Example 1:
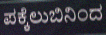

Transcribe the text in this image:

ಪಕ್ಕೆಲುಬಿನಿಂದ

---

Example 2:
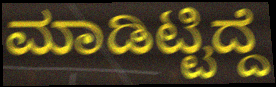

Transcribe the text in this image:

ಮಾಡಿಟ್ಟಿದ್ದೆ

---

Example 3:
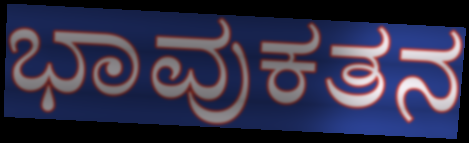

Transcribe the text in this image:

ಭಾವುಕತನ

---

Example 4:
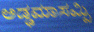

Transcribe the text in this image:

ಅಡ್ಢಮಾಸಮ್ಪಿ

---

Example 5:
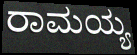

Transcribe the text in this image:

ರಾಮಯ್ಯ